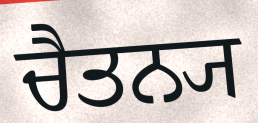
ਚੈਤਨ੍ਯ